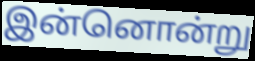
இன்னொன்று